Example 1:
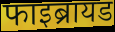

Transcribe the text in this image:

फाइब्रायड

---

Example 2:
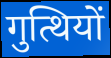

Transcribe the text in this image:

गुत्थियों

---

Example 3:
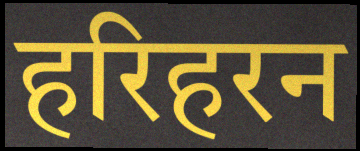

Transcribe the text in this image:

हरिहरन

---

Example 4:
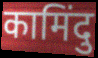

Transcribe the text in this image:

कामिंदु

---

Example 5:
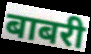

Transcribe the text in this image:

बाबरी